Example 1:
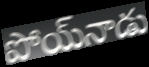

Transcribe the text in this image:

పోయ్‌నాడు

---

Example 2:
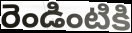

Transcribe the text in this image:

రెండింటికి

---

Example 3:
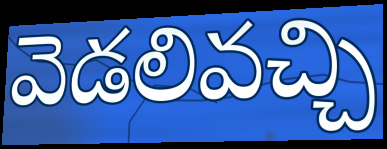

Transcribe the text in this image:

వెడలివచ్చి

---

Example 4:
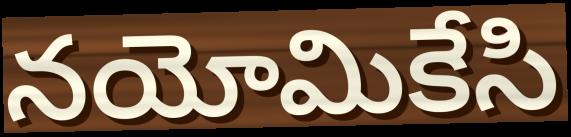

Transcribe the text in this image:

నయోమికేసి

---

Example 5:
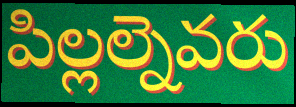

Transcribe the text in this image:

పిల్లల్నెవరు